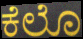
ಕೆಲೊ